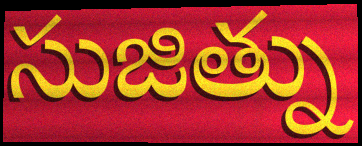
సుజిత్ను